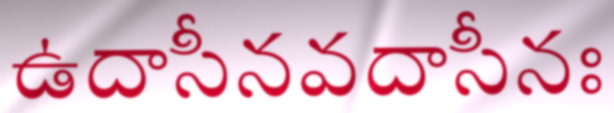
ఉదాసీనవదాసీనః